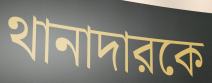
থানাদারকে